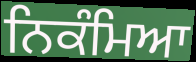
ਨਿਕੰਮਿਆ